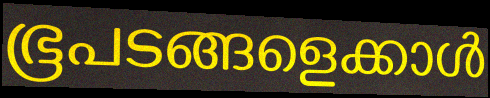
ഭൂപടങ്ങളെക്കാൾ